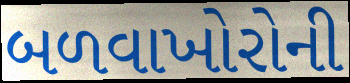
બળવાખોરોની